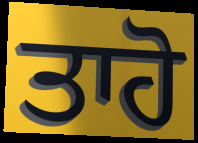
ਤਾਹੋ